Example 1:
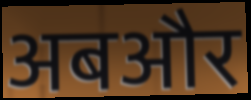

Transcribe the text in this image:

अबऔर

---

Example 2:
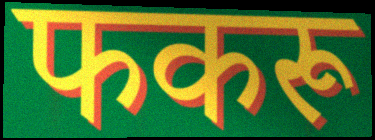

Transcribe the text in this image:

फकरू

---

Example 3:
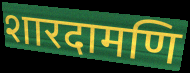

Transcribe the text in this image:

शारदामणि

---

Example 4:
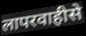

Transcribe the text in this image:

लापरवाहीसे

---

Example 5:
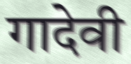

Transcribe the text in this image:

गादेवी